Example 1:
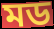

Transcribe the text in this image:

মড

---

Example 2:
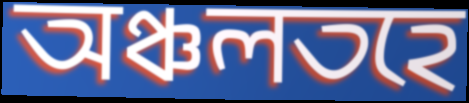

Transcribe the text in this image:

অঞ্চলতহে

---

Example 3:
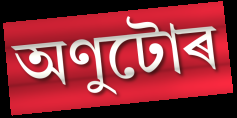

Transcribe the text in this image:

অণুটোৰ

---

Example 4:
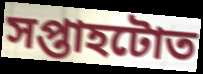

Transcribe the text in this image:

সপ্তাহটোত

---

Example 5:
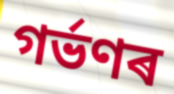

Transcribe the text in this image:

গৰ্ভণৰ